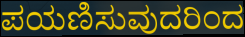
ಪಯಣಿಸುವುದರಿಂದ